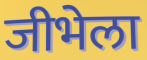
जीभेला